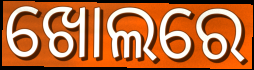
ଖୋଲରେ